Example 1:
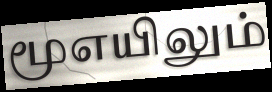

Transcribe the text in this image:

மூஎயிலும்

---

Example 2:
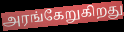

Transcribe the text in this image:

அரங்கேறுகிறது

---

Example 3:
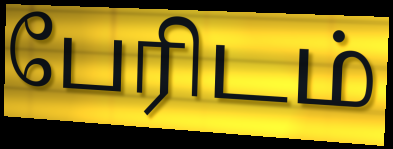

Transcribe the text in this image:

பேரிடம்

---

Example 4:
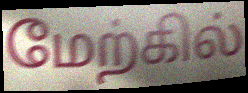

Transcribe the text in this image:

மேற்கில்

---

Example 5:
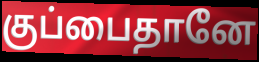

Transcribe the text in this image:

குப்பைதானே